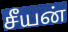
சீயன்